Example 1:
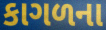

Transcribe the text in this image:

કાગળના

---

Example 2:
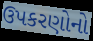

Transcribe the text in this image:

ઉપકરણોનો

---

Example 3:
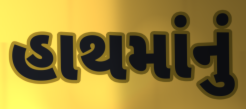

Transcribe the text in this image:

હાથમાંનું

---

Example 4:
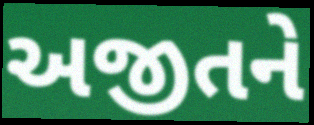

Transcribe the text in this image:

અજીતને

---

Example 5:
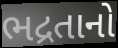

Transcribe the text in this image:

ભદ્રતાનો